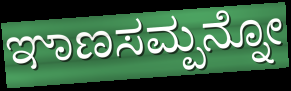
ಞಾಣಸಮ್ಪನ್ನೋ